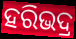
ହରିଭଦ୍ର